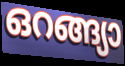
ഒറങ്ങ്യാ